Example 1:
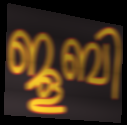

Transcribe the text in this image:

ജൂബി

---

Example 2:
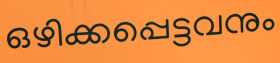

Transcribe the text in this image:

ഒഴിക്കപ്പെട്ടവനും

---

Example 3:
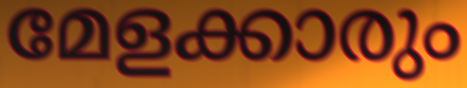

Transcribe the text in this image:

മേളക്കാരും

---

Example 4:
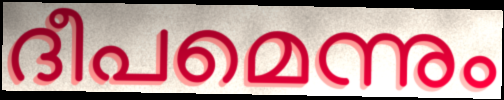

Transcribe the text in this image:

ദീപമെന്നും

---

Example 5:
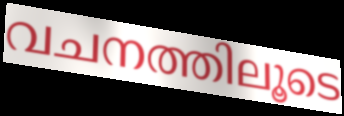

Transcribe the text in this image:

വചനത്തിലൂടെ